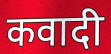
कवादी